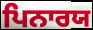
ਪਿਨਾਰਯ